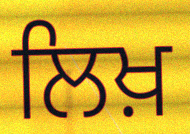
ਲਿਖ਼